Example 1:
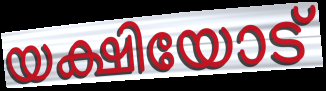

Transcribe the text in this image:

യക്ഷിയോട്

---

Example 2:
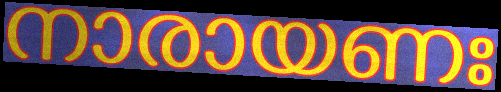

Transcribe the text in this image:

നാരായണഃ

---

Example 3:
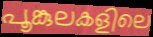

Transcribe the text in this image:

പൂങ്കുലകളിലെ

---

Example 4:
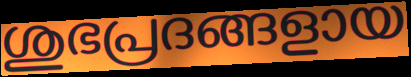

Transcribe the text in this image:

ശുഭപ്രദങ്ങളായ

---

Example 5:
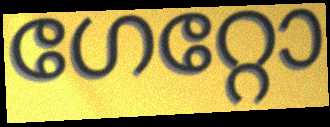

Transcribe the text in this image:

ഗേറ്റോ